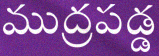
ముద్రపడ్డ